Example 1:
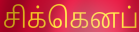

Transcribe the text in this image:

சிக்கெனப்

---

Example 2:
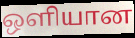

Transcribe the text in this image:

ஒளியான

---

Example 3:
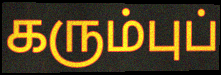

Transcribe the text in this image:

கரும்புப்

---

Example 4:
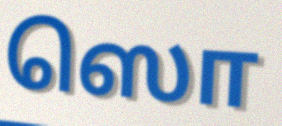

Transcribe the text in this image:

ஸொ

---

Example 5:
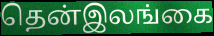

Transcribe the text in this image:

தென்இலங்கை